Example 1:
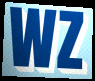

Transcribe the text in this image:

WZ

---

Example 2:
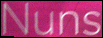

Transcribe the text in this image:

Nuns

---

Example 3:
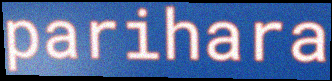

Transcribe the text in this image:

parihara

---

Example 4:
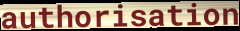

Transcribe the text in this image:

authorisation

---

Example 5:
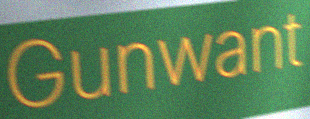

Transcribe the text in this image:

Gunwant